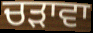
ਚੜਾਵਾ